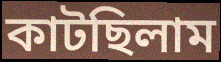
কাটছিলাম